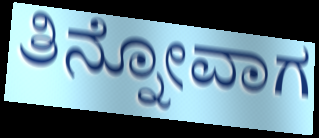
ತಿನ್ನೋವಾಗ